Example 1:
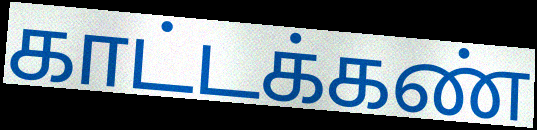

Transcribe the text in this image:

காட்டக்கண்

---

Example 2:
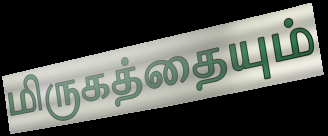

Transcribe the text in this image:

மிருகத்தையும்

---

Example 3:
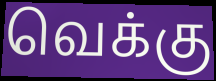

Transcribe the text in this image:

வெக்கு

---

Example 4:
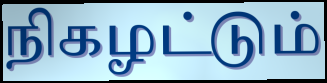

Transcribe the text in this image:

நிகழட்டும்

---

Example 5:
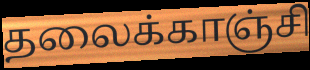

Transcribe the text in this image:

தலைக்காஞ்சி